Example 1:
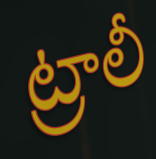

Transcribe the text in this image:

ట్రాలీ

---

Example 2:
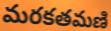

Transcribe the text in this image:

మరకతమణి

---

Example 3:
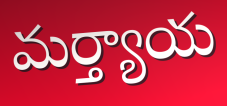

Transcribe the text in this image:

మర్త్యాయ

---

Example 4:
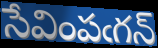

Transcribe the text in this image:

సేవింపఁగన్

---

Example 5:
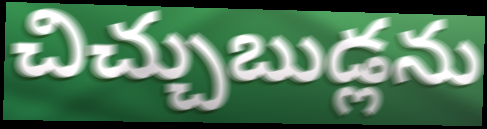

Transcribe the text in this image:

చిచ్చుబుడ్లను